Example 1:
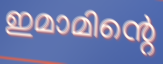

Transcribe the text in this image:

ഇമാമിന്റെ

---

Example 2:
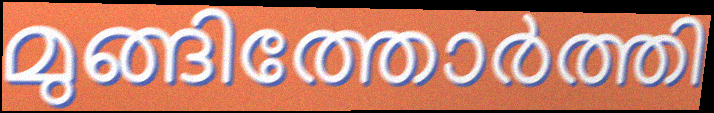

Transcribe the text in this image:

മുങ്ങിത്തോർത്തി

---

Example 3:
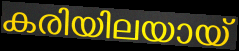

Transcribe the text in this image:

കരിയിലയായ്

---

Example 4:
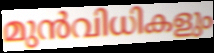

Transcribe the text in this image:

മുൻവിധികളും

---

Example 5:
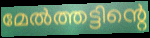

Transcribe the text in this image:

മേൽത്തട്ടിന്റെ